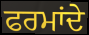
ਫਰਮਾਂਦੇ